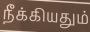
நீக்கியதும்